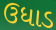
ઉધાડ